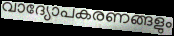
വാദ്യോപകരണങ്ങളും